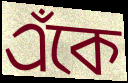
এঁকে